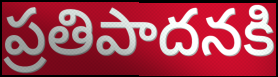
ప్రతిపాదనకి